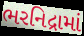
ભરનિદ્રામાં